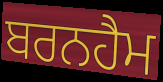
ਬਰਨਹੈਮ